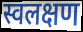
स्वलक्षण